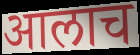
आलाच